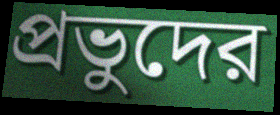
প্রভুদের